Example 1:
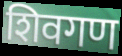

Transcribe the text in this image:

शिवगण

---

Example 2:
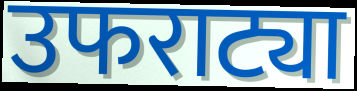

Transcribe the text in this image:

उफराट्या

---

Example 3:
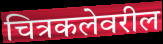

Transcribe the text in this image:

चित्रकलेवरील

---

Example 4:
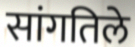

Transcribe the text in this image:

सांगतिले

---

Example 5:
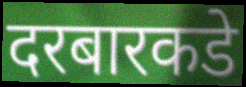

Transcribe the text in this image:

दरबारकडे